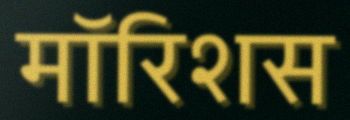
मॉरिशस